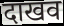
दाखव